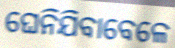
ଘେନିଯିବାବେଳେ